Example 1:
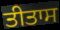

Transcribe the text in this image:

ਤੀਤਾਸ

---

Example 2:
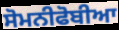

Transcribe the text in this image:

ਸੋਮਨੀਫੋਬੀਆ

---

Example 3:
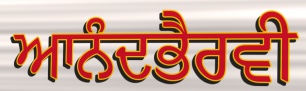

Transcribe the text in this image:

ਆਨੰਦਭੈਰਵੀ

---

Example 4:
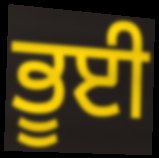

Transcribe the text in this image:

ਭੂਈ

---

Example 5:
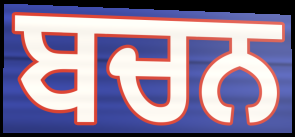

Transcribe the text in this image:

ਬਚਨ